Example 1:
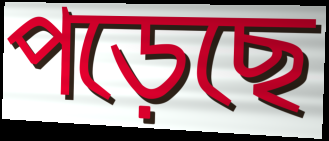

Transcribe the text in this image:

পড়েছে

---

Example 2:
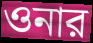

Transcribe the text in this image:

ওনার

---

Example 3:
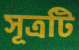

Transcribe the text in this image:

সূত্রটি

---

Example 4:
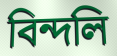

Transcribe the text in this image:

বিন্দলি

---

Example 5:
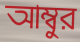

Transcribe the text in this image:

আম্বুর